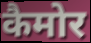
कैमोर